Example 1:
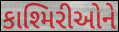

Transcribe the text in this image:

કાશ્મિરીઓને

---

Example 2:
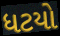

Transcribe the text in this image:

ધટયો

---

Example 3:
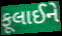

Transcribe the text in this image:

ફૂલાઈને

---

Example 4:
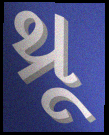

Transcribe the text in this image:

થ્રૂ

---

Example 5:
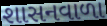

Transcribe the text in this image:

શાસનવાળા